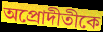
অপ্রোদীতীকে